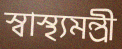
স্বাস্থ্যমন্ত্রী